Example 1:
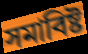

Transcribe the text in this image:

সমাবিষ্ট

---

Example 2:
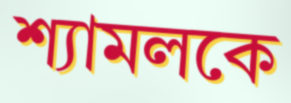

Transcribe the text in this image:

শ্যামলকে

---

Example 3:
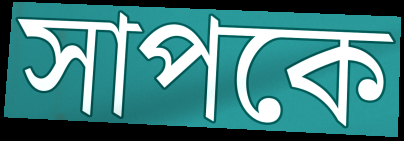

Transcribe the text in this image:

সাপকে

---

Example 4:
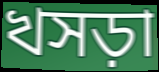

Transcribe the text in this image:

খসড়া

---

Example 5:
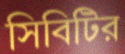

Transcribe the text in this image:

সিবিটির